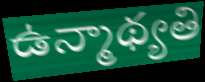
ఉన్మాథ్యతి